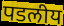
पडलीय